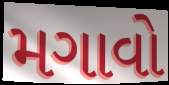
મગાવો